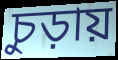
চুড়ায়